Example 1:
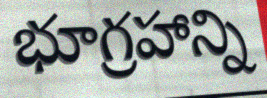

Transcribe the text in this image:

భూగ్రహాన్ని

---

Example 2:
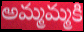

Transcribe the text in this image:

అమ్మమ్మకి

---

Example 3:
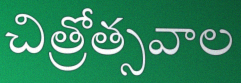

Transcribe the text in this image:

చిత్రోత్సవాల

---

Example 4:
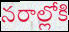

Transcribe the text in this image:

నరాల్లోకి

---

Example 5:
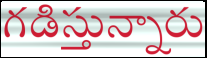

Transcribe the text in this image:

గడిస్తున్నారు